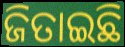
ଜିତାଇଛି